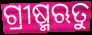
ଗ୍ରୀଷ୍ମଋତୁ